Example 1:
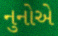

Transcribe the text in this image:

નુનોએ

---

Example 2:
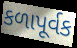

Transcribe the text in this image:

કળાપૂર્વક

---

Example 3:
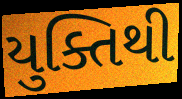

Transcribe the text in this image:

યુક્તિથી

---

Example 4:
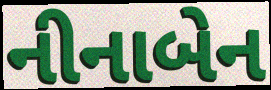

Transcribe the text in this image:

નીનાબેન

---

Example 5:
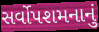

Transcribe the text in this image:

સર્વોપશમનાનું